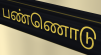
பண்ணொடு